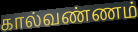
கால்வண்ணம்